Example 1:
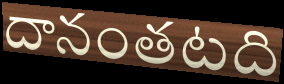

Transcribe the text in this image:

దానంతటది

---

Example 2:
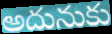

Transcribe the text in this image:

అదునుకు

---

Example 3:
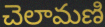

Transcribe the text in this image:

చెలామణి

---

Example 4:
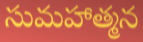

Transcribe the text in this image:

సుమహాత్మన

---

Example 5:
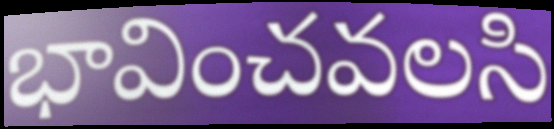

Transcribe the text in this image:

భావించవలసి